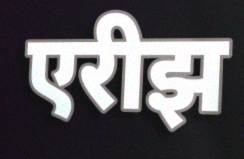
एरीझ